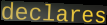
declares